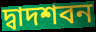
দ্বাদশবন